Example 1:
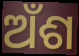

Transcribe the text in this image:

ଅଁଶ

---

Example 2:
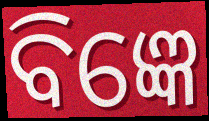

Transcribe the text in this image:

ବିଜ୍ଞେ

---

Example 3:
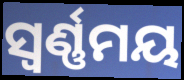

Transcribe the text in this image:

ସ୍ୱର୍ଣ୍ଣମୟ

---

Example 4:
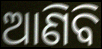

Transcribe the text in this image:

ଆଣିବି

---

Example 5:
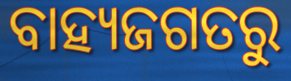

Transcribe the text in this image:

ବାହ୍ୟଜଗତରୁ